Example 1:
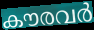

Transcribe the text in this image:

കൗരവർ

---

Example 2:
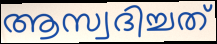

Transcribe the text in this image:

ആസ്വദിച്ചത്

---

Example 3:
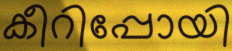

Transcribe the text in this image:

കീറിപ്പോയി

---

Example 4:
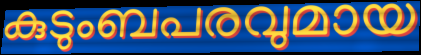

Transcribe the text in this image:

കുടുംബപരവുമായ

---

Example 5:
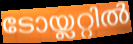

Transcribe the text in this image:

ടോയ്ലറ്റിൽ